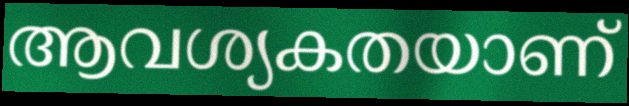
ആവശ്യകതയാണ്